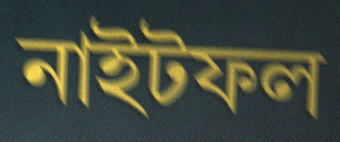
নাইটফল